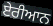
ਏਰੀਆਨ